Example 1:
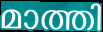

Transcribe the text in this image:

മാത്തി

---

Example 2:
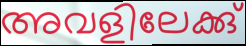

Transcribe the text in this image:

അവളിലേക്കു്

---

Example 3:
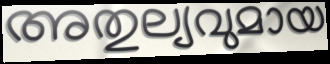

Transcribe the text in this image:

അതുല്യവുമായ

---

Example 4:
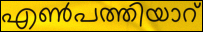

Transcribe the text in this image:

എൺപത്തിയാറ്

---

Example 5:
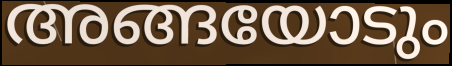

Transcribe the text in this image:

അങ്ങയോടും